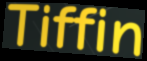
Tiffin